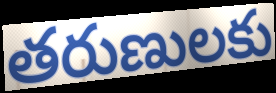
తరుణులకు